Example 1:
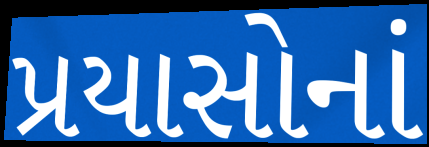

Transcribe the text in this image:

પ્રયાસોનાં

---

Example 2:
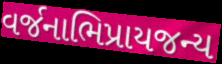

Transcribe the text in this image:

વર્જનાભિપ્રાયજન્ય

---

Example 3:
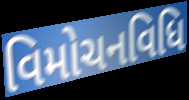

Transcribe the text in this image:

વિમોચનવિધિ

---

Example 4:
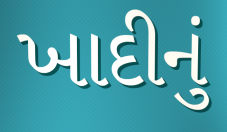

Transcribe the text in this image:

ખાદીનું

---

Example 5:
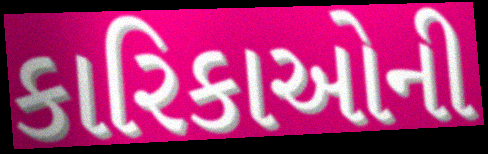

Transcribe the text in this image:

કારિકાઓની